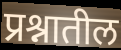
प्रश्नातील